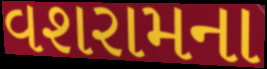
વશરામના